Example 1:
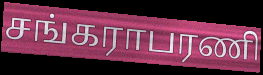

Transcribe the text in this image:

சங்கராபரணி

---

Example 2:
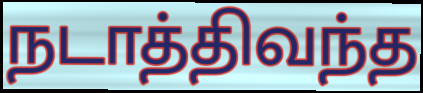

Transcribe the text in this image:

நடாத்திவந்த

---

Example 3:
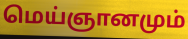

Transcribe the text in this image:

மெய்ஞானமும்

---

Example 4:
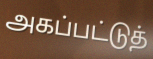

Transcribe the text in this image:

அகப்பட்டுத்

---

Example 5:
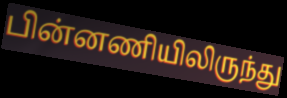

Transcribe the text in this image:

பின்னணியிலிருந்து